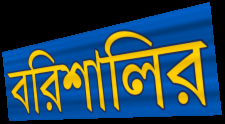
বরিশালির